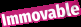
Immovable